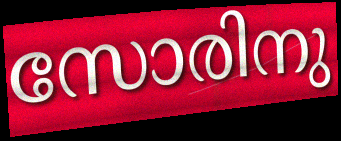
സോരിനു